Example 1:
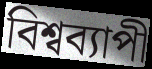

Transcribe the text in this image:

বিশ্বব্যাপী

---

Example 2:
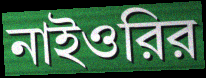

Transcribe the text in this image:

নাইওরির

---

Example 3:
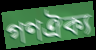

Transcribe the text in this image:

গণঐক্য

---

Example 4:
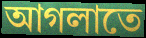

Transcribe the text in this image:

আগলাতে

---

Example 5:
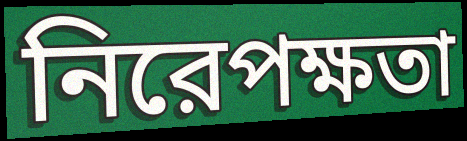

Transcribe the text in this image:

নিরেপক্ষতা